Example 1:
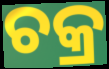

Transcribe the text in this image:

ଚକ୍ର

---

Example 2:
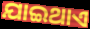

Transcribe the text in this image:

ଯାଇଥାଏ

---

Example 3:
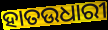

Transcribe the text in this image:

ହାତଉଧାରୀ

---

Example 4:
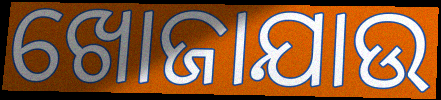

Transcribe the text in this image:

ଖୋଜାଯାଉ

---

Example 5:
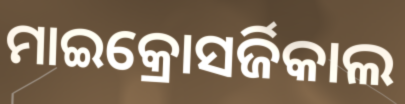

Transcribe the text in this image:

ମାଇକ୍ରୋସର୍ଜିକାଲ